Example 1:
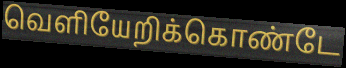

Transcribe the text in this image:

வெளியேறிக்கொண்டே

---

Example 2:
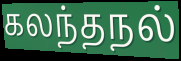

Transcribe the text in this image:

கலந்தநல்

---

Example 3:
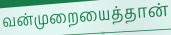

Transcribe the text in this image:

வன்முறையைத்தான்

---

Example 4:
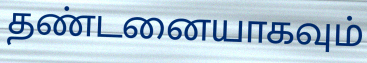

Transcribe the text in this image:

தண்டனையாகவும்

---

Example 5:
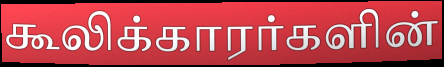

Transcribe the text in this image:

கூலிக்காரர்களின்